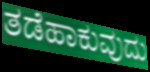
ತಡೆಹಾಕುವುದು